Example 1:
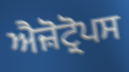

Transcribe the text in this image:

ਐਜ਼ੋਟ੍ਰੋਪਸ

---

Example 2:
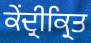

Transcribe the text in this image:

ਕੇਂਦ੍ਰੀਕ੍ਰਿਤ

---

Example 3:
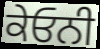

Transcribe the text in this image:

ਕੇਓਨੀ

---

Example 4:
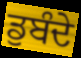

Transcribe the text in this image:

ਡੁਬੰਦੇ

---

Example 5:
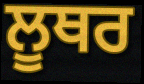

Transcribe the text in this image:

ਲੂਥਰ